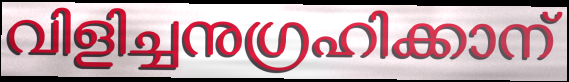
വിളിച്ചനുഗ്രഹിക്കാന്